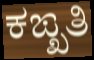
ಕಙ್ಖತಿ